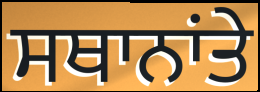
ਸਥਾਨਾਂਤੇ